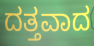
ದತ್ತವಾದ